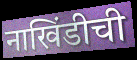
नाखिंडीची